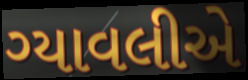
ગ્યાવલીએ